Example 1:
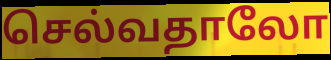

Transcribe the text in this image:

செல்வதாலோ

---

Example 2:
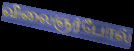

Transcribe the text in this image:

விலைஞர்போல்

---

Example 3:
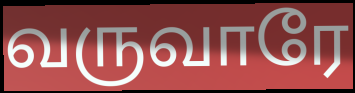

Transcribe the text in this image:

வருவாரே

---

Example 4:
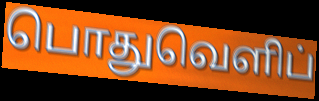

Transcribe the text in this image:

பொதுவெளிப்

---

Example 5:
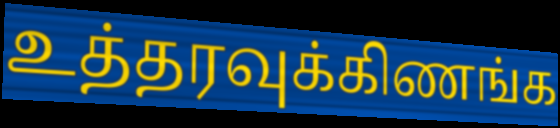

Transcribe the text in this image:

உத்தரவுக்கிணங்க